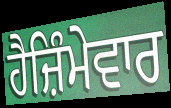
ਹੈਜ਼ਿੰਮੇਵਾਰ